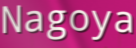
Nagoya